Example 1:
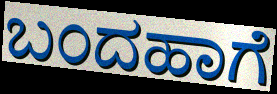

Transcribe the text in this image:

ಬಂದಹಾಗೆ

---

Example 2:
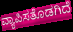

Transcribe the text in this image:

ವ್ಯಾಪಿಸತೊಡಗಿದೆ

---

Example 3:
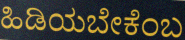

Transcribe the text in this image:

ಹಿಡಿಯಬೇಕೆಂಬ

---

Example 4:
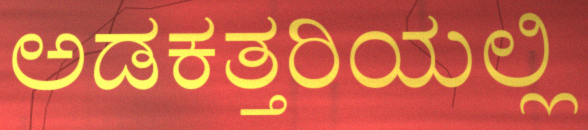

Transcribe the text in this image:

ಅಡಕತ್ತರಿಯಲ್ಲಿ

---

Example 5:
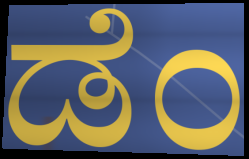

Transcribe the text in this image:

ಡೆಂ